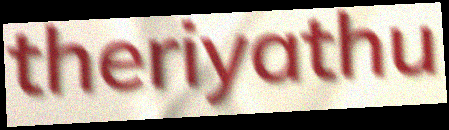
theriyathu